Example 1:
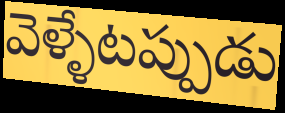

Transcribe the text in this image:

వెళ్ళేటప్పుడు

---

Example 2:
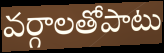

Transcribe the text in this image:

వర్గాలతోపాటు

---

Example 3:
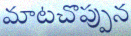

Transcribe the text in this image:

మాటచొప్పున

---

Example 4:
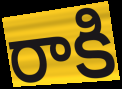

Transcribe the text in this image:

రాకి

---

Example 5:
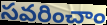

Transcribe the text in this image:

సవరించాం